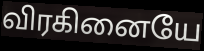
விரகினையே